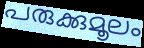
പരുക്കുമൂലം